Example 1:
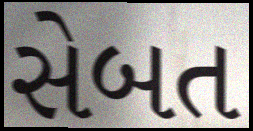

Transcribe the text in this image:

સેબત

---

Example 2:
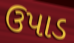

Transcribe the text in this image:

ઉપાડ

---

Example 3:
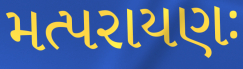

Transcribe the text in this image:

મત્પરાયણઃ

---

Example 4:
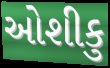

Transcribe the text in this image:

ઓશીકુ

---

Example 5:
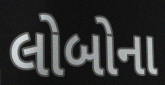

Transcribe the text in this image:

લોબોના